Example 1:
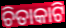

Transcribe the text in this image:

ଚିତାକାଟି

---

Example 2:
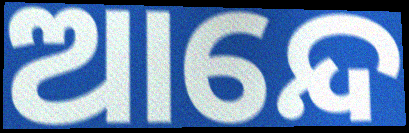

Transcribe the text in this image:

ଆନ୍ଦେ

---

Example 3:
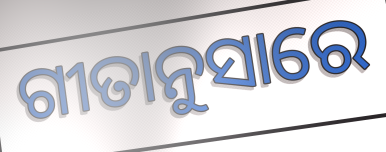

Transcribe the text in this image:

ଗୀତାନୁସାରେ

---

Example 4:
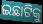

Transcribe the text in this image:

ଇଛାଟିକୁ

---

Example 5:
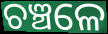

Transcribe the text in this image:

ଚଞ୍ଚଳେ